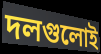
দলগুলোই